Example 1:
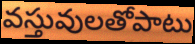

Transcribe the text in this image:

వస్తువులతోపాటు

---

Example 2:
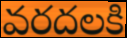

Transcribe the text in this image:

వరదలకి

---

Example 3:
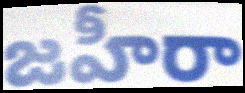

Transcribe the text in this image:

జహీరా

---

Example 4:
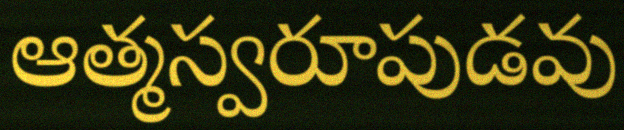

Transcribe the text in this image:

ఆత్మస్వరూపుడవు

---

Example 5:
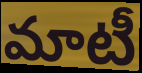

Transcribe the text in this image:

మాటీ